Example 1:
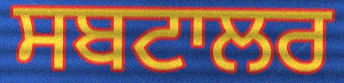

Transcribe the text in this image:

ਸਬਟਾਲਰ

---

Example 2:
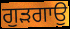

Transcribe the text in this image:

ਗੁੜਗਾਉ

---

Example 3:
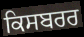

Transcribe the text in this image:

ਕਿਸਬਰਰ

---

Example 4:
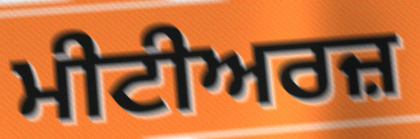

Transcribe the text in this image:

ਮੀਟੀਅਰਜ਼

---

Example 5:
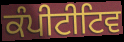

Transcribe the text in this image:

ਕੰਪੀਟੀਟਿਵ